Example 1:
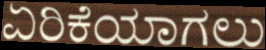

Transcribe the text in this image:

ಏರಿಕೆಯಾಗಲು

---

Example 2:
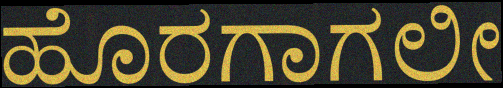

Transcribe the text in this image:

ಹೊರಗಾಗಲೀ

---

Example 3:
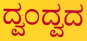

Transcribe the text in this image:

ದ್ವಂದ್ವದ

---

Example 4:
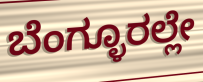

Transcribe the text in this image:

ಬೆಂಗ್ಳೂರಲ್ಲೇ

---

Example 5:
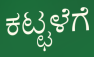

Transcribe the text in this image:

ಕಟ್ಟಳೆಗೆ